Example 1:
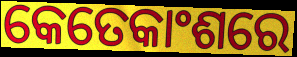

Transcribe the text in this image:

କେତେକାଂଶରେ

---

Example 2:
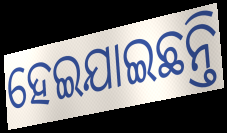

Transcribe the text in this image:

ହେଇଯାଇଛନ୍ତି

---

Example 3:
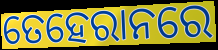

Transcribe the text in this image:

ତେହେରାନରେ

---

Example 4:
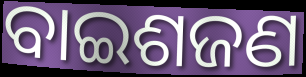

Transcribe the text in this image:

ବାଇଶଜଣ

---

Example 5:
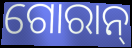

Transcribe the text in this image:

ଗୋରାନ୍